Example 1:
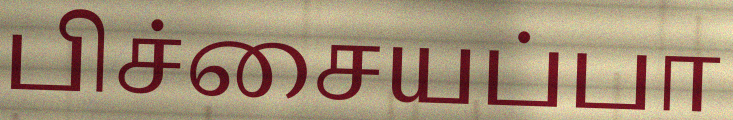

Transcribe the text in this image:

பிச்சையப்பா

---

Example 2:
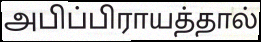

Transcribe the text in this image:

அபிப்பிராயத்தால்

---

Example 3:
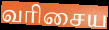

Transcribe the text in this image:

வரிசைய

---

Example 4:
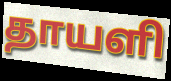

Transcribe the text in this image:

தாயளி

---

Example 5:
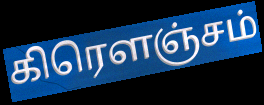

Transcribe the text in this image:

கிரௌஞ்சம்